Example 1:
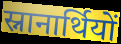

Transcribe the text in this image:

स्नानार्थियों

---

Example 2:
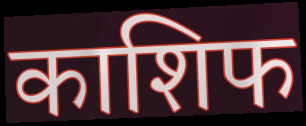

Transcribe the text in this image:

काशिफ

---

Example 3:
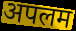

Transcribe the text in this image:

अपलम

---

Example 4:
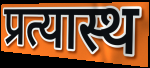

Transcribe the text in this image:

प्रत्यास्थ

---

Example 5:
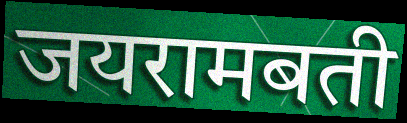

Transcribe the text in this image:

जयरामबती